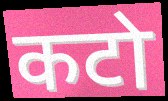
कटो